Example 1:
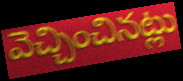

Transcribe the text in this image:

వెచ్చించినట్లు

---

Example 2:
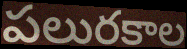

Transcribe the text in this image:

పలురకాల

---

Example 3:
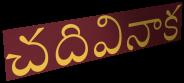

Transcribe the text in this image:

చదివినాక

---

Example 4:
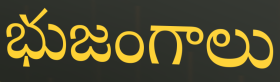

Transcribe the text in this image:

భుజంగాలు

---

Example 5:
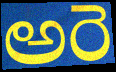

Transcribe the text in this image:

అరె